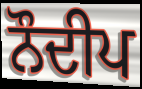
ਨੌਦੀਪ